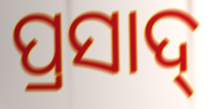
ପ୍ରସାଦ୍